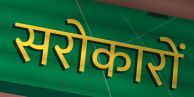
सरोकारों